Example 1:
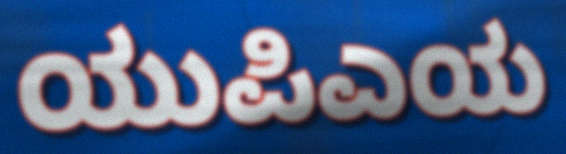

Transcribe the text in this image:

ಯುಪಿಎಯ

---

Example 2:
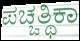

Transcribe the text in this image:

ಪಚ್ಚತ್ಥಿಕಾ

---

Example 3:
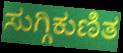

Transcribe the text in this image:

ಸುಗ್ಗಿಕುಣಿತ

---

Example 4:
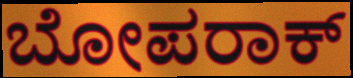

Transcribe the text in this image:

ಬೋಪರಾಕ್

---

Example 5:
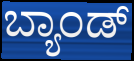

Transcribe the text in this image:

ಬ್ಯಾಂಡ್